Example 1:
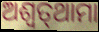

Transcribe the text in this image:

ଅଶ୍ଵତ୍‌ଥାମା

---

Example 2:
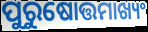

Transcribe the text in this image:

ପୁରୁଷୋତ୍ତମାଖ୍ୟଂ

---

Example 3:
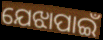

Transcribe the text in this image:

ଯେଝାପାଇଁ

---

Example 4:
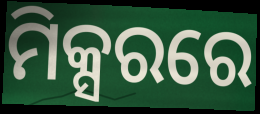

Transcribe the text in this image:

ମିକ୍ସରରେ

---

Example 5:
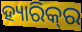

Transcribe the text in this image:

ହ୍ୟାରିକ୍‌ର